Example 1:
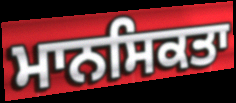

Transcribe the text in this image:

ਮਾਨਸਿਕਤਾ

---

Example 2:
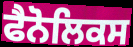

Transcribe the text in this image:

ਫੈਨੋਲਿਕਸ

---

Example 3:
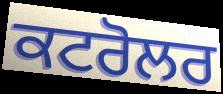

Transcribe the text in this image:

ਕਟਰੋਲਰ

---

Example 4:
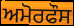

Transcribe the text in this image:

ਅਮੋਰਫੌਸ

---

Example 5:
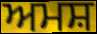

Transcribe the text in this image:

ਅਮਸ਼